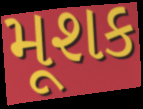
મૂશક